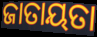
ଜାତାୟତା